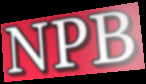
NPB